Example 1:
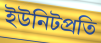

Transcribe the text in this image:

ইউনিটপ্রতি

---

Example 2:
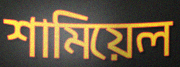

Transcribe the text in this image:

শামিয়েল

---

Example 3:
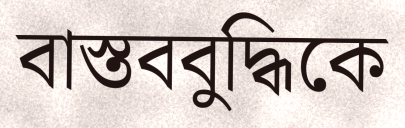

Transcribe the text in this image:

বাস্তববুদ্ধিকে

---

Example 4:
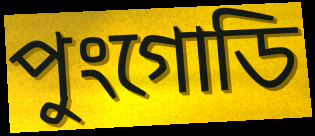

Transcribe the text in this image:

পুংগোডি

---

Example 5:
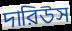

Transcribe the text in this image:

দারিউস